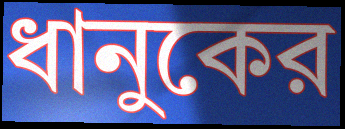
ধানুকের